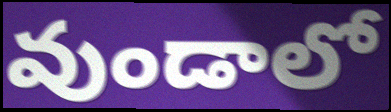
వుండాలో